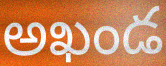
అఖండ